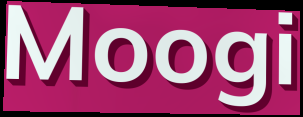
Moogi